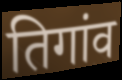
तिगांव